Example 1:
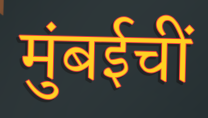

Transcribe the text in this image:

मुंबईचीं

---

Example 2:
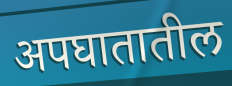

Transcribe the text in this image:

अपघातातील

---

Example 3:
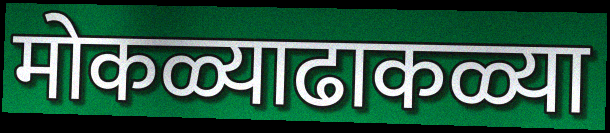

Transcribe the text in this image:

मोकळ्याढाकळ्या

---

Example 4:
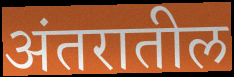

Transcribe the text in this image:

अंतरातील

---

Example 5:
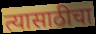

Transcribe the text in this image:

त्यासाठीचा